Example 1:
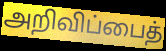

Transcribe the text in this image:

அறிவிப்பைத்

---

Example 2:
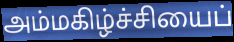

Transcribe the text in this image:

அம்மகிழ்ச்சியைப்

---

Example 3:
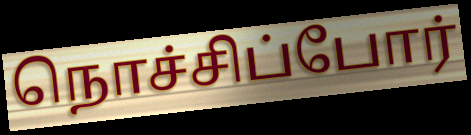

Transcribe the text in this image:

நொச்சிப்போர்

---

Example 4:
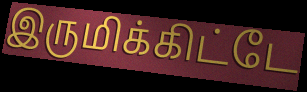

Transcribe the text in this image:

இருமிக்கிட்டே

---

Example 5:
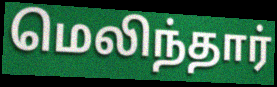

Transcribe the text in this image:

மெலிந்தார்